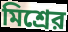
মিশ্রের